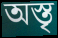
অস্তৃ